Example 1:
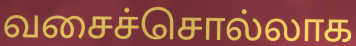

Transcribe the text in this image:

வசைச்சொல்லாக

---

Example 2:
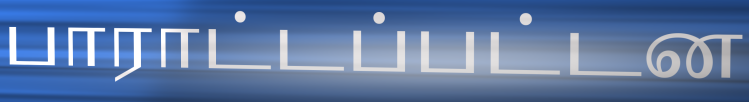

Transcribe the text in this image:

பாராட்டப்பட்டன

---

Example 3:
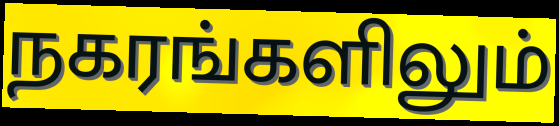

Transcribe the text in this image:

நகரங்களிலும்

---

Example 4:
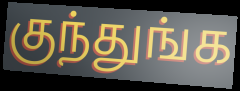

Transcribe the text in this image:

குந்துங்க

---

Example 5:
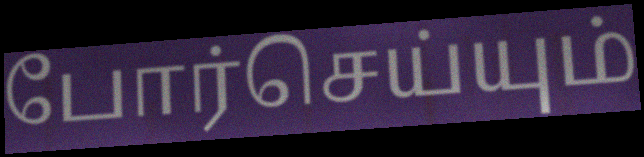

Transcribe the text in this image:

போர்செய்யும்